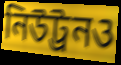
নিউট্রনও